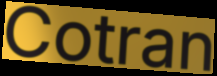
Cotran